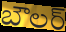
బౌలర్